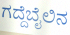
ಗದ್ದೆಬೈಲಿನ